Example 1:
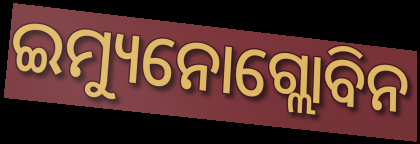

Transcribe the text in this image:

ଇମ୍ୟୁନୋଗ୍ଲୋବିନ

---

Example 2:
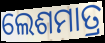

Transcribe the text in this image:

ଲେଶମାତ୍ର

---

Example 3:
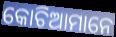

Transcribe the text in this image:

କୋଚିଆମାନେ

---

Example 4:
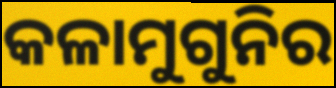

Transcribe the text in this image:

କଳାମୁଗୁନିର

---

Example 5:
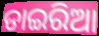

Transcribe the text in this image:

ଡାଇରିଆ